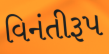
વિનંતીરૂપ